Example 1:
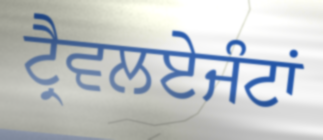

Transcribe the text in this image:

ਟ੍ਰੈਵਲਏਜੰਟਾਂ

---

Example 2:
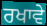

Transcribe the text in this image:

ਰਖਾਵੇ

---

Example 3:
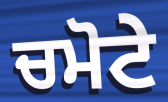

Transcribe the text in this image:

ਚਮੋਟੇ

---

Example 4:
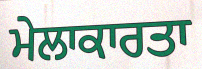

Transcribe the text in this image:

ਮੇਲਾਕਾਰਤਾ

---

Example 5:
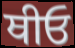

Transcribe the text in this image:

ਥੀਓ